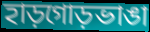
হাড়গোড়ভাঙা